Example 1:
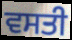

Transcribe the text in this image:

ਵਸਤੀ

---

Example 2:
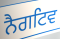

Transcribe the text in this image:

ਨੈਗਟਿਵ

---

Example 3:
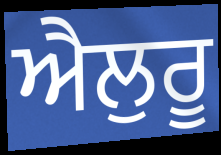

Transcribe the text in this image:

ਐਲੁਰੂ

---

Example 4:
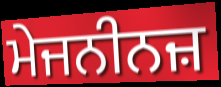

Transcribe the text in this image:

ਮੇਜਨੀਨਜ਼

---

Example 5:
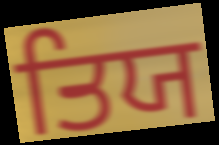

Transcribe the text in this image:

ਤਿਯ